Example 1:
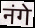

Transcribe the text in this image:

नंगे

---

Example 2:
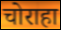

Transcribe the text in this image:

चोराहा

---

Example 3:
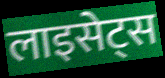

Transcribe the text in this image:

लाइसेट्स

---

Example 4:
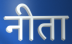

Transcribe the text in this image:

नीता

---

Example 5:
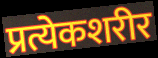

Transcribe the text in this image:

प्रत्येकशरीर